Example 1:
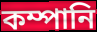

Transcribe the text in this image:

কম্পানি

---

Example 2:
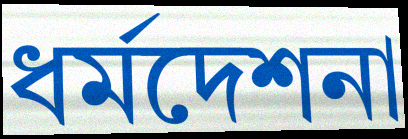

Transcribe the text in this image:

ধর্মদেশনা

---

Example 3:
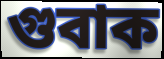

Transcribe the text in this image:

গুবাক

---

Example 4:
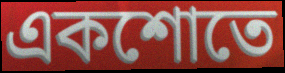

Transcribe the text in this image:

একশোতে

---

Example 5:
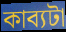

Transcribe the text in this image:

কাব্যটা